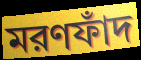
মরণফাঁদ